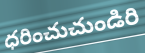
ధరించుచుండిరి